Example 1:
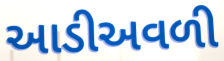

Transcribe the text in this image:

આડીઅવળી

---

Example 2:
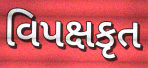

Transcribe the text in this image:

વિપક્ષકૃત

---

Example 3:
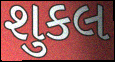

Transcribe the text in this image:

શુકલ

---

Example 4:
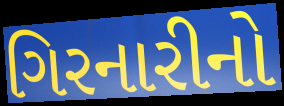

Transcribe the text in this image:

ગિરનારીનો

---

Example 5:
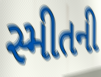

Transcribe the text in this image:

સ્મીતની